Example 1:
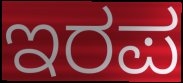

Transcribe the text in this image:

ಇರಪ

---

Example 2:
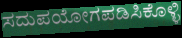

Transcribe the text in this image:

ಸದುಪಯೋಗಪಡಿಸಿಕೊಳ್ಳಿ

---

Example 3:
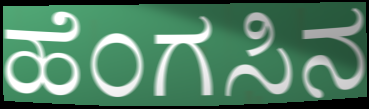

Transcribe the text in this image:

ಹೆಂಗಸಿನ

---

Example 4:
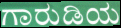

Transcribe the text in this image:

ಗಾರುಡಿಯ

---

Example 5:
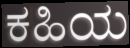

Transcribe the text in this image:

ಕಹಿಯ